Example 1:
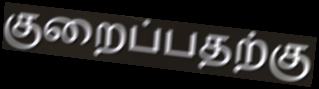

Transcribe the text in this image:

குறைப்பதற்கு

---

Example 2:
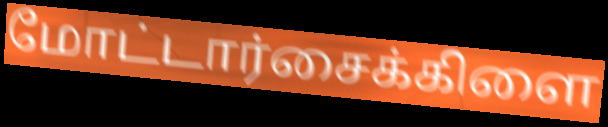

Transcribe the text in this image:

மோட்டார்சைக்கிளை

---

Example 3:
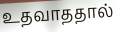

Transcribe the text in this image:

உதவாததால்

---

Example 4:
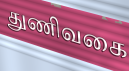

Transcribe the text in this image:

துணிவகை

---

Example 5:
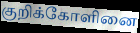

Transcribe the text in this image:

குறிக்கோளினை